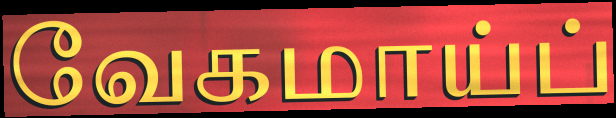
வேகமாய்ப்